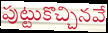
పుట్టుకొచ్చినవే